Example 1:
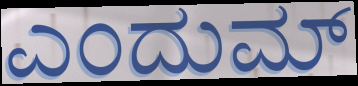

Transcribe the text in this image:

ಎಂದುಮ್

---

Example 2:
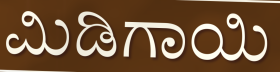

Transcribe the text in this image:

ಮಿಡಿಗಾಯಿ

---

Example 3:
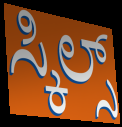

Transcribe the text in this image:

ಸ್ಕಿಲ್ಸ್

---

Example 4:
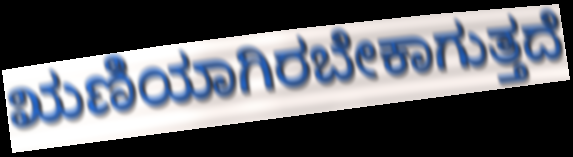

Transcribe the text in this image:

ಋಣಿಯಾಗಿರಬೇಕಾಗುತ್ತದೆ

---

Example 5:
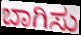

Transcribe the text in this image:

ಬಾಗಿಸು